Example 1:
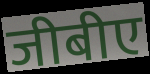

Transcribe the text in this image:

जीबीए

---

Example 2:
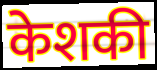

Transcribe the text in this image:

केशकी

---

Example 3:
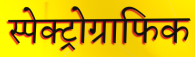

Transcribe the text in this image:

स्पेक्ट्रोग्राफिक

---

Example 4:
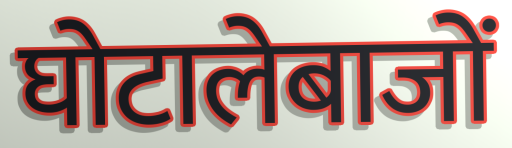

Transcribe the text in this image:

घोटालेबाजों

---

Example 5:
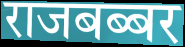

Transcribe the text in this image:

राजबब्बर